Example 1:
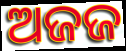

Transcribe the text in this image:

ଅଜଜ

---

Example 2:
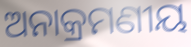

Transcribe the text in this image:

ଅନାକ୍ରମଣୀୟ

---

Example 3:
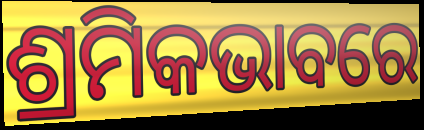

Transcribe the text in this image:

ଶ୍ରମିକଭାବରେ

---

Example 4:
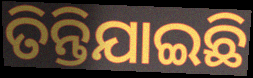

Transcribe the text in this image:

ତିନ୍ତିଯାଇଛି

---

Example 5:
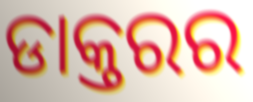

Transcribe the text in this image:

ଡାକ୍ତରର